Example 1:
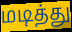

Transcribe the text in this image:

மடித்து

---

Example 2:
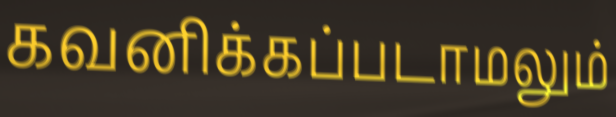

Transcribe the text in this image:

கவனிக்கப்படாமலும்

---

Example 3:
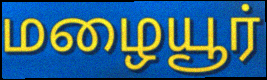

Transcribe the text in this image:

மழையூர்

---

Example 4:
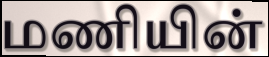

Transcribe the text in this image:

மணியின்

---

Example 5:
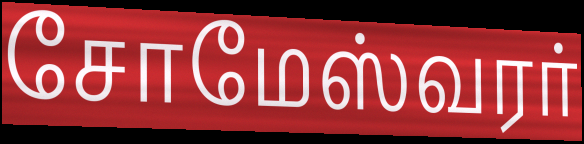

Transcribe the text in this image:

சோமேஸ்வரர்